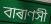
বাৰাণসী